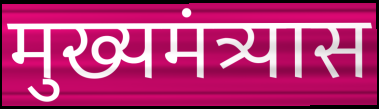
मुख्यमंत्र्यास